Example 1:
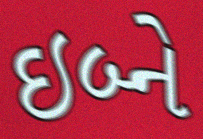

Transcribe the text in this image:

ઇબ્ને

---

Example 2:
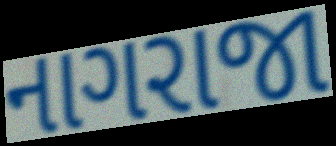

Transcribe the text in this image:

નાગરાજા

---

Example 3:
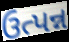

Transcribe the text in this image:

ઉત્પન્ન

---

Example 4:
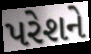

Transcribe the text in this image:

પરેશને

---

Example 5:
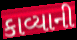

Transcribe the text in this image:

કાવ્યાની